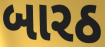
બારઠ